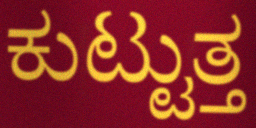
ಕುಟ್ಟುತ್ತ